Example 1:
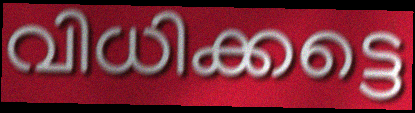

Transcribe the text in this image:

വിധിക്കട്ടെ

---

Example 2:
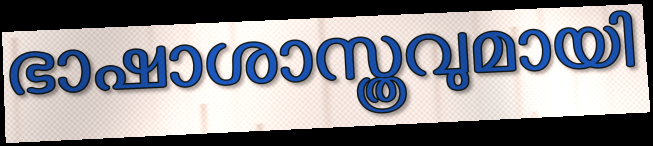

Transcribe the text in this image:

ഭാഷാശാസ്ത്രവുമായി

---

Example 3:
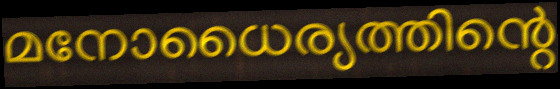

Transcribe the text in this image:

മനോധൈര്യത്തിന്റെ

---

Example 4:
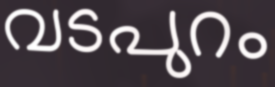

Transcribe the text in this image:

വടപുറം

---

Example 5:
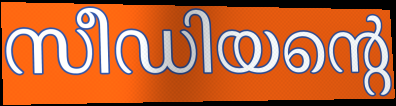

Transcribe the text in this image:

സീഡിയന്റെ